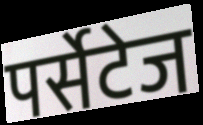
पर्सेटेज